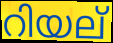
റിയല്